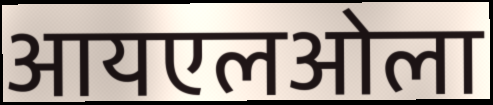
आयएलओला